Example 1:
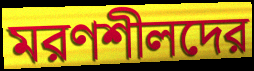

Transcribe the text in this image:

মরণশীলদের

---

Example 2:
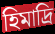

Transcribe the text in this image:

হিমাদ্রি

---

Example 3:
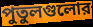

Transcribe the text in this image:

পুতুলগুলোর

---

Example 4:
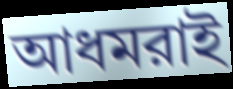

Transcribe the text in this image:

আধমরাই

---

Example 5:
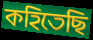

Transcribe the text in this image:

কহিতেছি